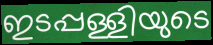
ഇടപ്പള്ളിയുടെ